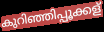
കുറിഞ്ഞിപ്പൂക്കള്